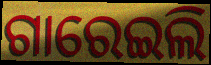
ଗାରେଇଲି